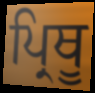
ਪ੍ਰਿਥੂ